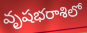
వృషభరాశిలో